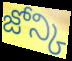
జోన్కి